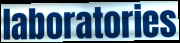
laboratories